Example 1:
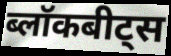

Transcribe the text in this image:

ब्लॉकबीट्स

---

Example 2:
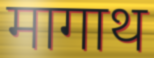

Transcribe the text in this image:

मागाथ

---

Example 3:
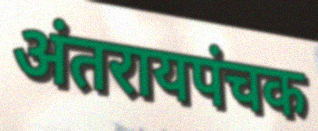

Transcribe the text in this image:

अंतरायपंचक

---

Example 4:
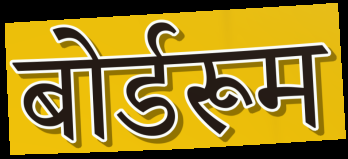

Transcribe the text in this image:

बोर्डरूम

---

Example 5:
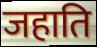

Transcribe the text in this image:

जहाति